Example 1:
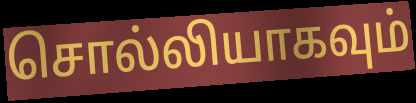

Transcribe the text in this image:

சொல்லியாகவும்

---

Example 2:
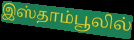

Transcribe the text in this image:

இஸ்தாம்பூலில்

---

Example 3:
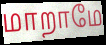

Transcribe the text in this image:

மாறாமே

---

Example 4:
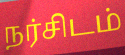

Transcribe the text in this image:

நர்சிடம்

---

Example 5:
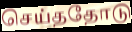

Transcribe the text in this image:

செய்ததோடு